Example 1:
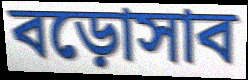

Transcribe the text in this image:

বড়োসাব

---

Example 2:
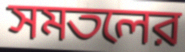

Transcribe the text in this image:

সমতলের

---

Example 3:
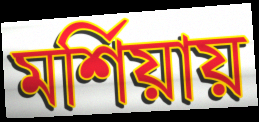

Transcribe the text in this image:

মর্শিয়ায়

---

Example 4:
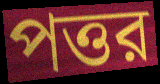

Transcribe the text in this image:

পত্তর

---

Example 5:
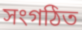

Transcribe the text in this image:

সংগঠিত